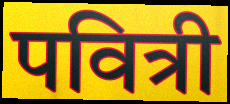
पवित्री